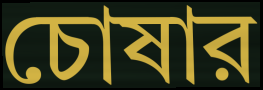
চোষার